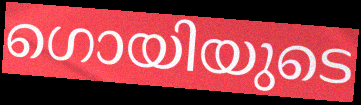
ഗൊയിയുടെ